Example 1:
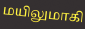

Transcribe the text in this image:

மயிலுமாகி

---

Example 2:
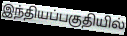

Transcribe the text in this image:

இந்தியப்பகுதியில்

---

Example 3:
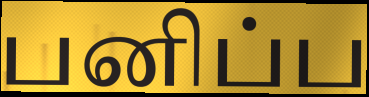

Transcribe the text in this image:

பனிப்ப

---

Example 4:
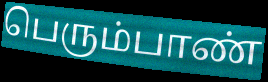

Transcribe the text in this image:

பெரும்பாண்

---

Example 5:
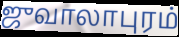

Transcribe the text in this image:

ஜுவாலாபுரம்